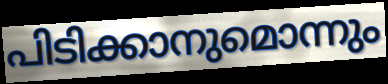
പിടിക്കാനുമൊന്നും